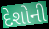
દેશોની